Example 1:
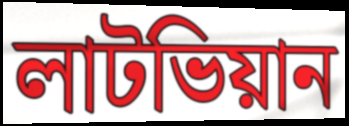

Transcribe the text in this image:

লাটভিয়ান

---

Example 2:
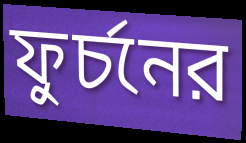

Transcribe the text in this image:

ফুর্চনের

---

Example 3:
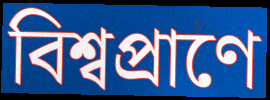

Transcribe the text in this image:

বিশ্বপ্রাণে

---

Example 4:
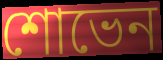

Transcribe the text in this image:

শোভেন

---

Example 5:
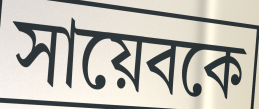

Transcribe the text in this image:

সায়েবকে